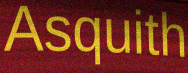
Asquith